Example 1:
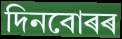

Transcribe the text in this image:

দিনবোৰৰ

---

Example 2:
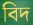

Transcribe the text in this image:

বিদ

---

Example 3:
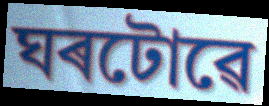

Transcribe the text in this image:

ঘৰটোৱে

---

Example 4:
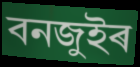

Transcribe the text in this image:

বনজুইৰ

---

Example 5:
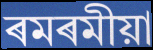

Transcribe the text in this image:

ৰমৰমীয়া